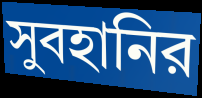
সুবহানির